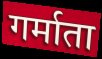
गर्माता